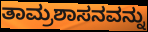
ತಾಮ್ರಶಾಸನವನ್ನು